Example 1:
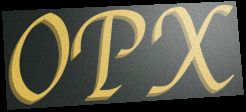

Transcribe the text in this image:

OPX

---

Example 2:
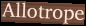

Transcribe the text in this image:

Allotrope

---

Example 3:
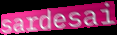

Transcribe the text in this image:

sardesai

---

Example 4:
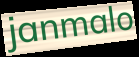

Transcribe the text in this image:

janmalo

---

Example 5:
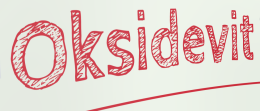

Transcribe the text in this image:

Oksidevit